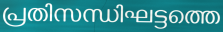
പ്രതിസന്ധിഘട്ടത്തെ